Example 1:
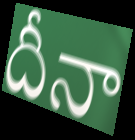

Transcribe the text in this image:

దీనా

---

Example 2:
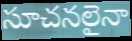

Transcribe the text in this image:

సూచనలైనా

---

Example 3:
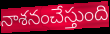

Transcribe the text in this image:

నాశనంచేస్తుంది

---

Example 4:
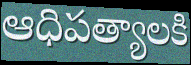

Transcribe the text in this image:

ఆధిపత్యాలకి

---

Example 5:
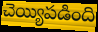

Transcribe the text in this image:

చెయ్యిపడింది